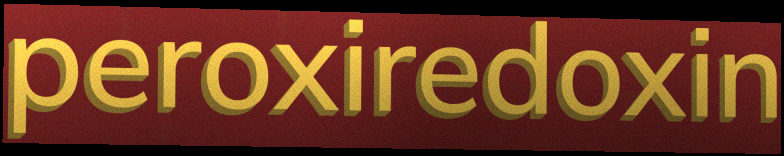
peroxiredoxin